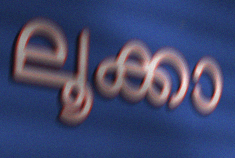
ലൂക്കാ